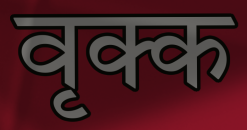
वृक्क